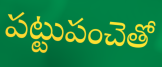
పట్టుపంచెతో